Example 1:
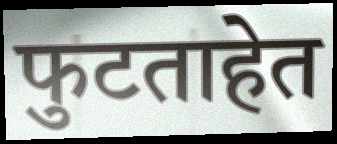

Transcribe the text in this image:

फुटताहेत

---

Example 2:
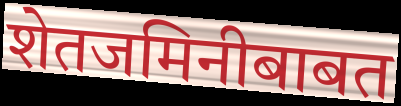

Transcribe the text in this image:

शेतजमिनीबाबत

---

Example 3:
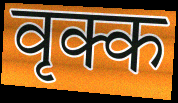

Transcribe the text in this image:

वृक्क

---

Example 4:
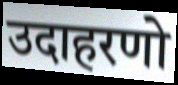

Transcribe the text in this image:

उदाहरणो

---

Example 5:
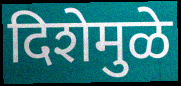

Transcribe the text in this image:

दिशेमुळे